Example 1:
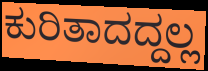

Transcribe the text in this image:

ಕುರಿತಾದದ್ದಲ್ಲ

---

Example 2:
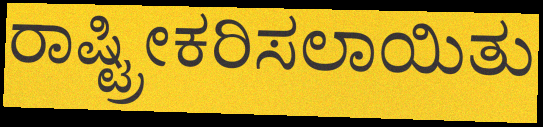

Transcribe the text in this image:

ರಾಷ್ಟ್ರೀಕರಿಸಲಾಯಿತು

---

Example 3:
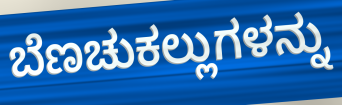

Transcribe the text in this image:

ಬೆಣಚುಕಲ್ಲುಗಳನ್ನು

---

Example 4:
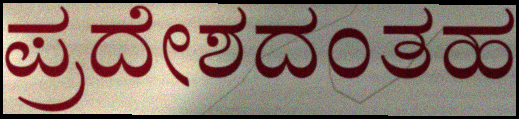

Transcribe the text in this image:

ಪ್ರದೇಶದಂತಹ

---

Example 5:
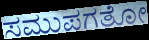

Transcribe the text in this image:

ಸಮುಪಗತೋ